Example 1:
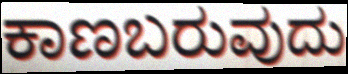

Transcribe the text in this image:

ಕಾಣಬರುವುದು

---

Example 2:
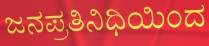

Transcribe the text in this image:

ಜನಪ್ರತಿನಿಧಿಯಿಂದ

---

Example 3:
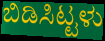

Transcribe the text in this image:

ಬಿಡಿಸಿಟ್ಟಳು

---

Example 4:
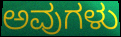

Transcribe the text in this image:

ಅವುಗಳು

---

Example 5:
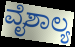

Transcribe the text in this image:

ವೈಶಾಲ್ಯ